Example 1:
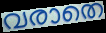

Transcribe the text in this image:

വരാതെ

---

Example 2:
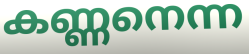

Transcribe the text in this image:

കണ്ണനെന്ന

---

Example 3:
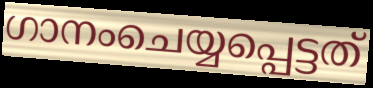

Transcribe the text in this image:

ഗാനംചെയ്യപ്പെട്ടത്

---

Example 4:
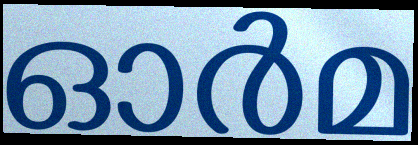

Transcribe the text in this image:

ഓർമ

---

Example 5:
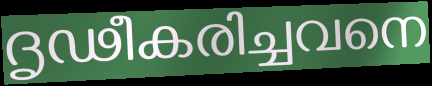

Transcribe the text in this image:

ദൃഢീകരിച്ചവനെ